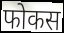
फोकस